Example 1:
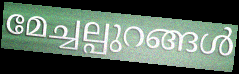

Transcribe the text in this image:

മേച്ചല്പുറങ്ങൾ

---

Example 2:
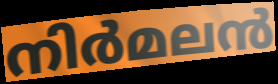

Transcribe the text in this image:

നിർമലൻ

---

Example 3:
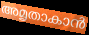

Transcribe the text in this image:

അമൃതാകാൻ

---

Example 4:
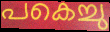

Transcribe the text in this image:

പകെച്ചു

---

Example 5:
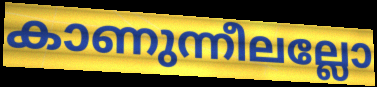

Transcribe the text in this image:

കാണുന്നീലല്ലോ